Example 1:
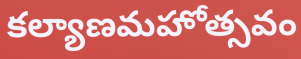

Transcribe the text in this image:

కల్యాణమహోత్సవం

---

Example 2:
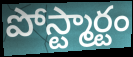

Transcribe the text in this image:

పోస్ట్మార్టం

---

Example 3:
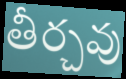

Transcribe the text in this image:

తీర్చవు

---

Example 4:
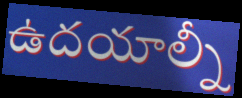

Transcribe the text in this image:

ఉదయాల్నీ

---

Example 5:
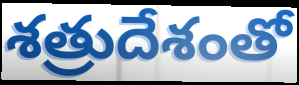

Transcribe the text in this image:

శత్రుదేశంతో